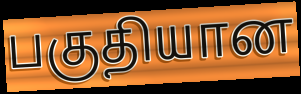
பகுதியான